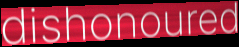
dishonoured